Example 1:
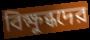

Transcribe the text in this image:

বিক্ষুব্ধদের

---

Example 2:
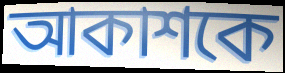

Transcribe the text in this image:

আকাশকে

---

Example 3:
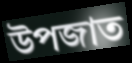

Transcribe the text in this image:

উপজাত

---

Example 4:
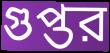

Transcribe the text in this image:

গুপ্তর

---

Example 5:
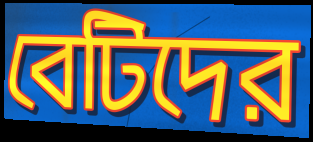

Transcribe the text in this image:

বেটিদের